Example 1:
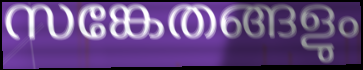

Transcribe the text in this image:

സങ്കേതങ്ങളും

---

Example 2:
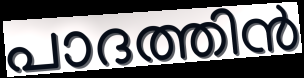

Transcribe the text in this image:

പാദത്തിൻ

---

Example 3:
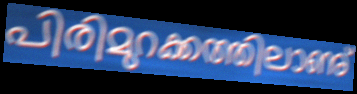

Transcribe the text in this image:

പിരിമുറക്കത്തിലാണു്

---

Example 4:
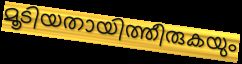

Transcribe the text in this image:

മൂടിയതായിത്തീരുകയും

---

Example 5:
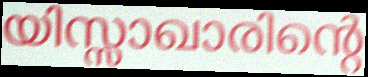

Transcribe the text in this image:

യിസ്സാഖാരിന്റെ